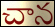
చాన